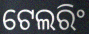
ଟେଲରିଂ